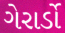
ગેરાર્ડો